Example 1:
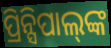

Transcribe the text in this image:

ପ୍ରିନ୍ସିପାଲ୍‍ଙ୍କ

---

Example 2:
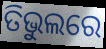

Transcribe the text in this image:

ତିଭୁଲରେ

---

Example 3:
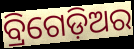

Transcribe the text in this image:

ବ୍ରିଗେଡ଼ିଅର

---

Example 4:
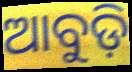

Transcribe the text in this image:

ଆବୁଡ଼ି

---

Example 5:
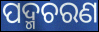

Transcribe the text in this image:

ପଦ୍ମଚରଣ